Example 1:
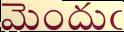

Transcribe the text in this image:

మెందుఁ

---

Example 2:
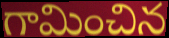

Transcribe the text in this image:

గామించిన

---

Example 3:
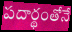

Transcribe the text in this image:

పదార్థంతోనే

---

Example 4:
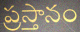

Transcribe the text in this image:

ప్రస్తానం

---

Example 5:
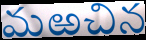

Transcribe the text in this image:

మఱచిన